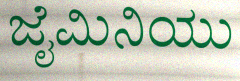
ಜೈಮಿನಿಯು